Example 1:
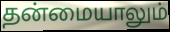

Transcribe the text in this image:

தன்மையாலும்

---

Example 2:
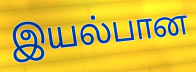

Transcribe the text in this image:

இயல்பான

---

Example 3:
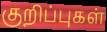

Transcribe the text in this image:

குறிப்புகள்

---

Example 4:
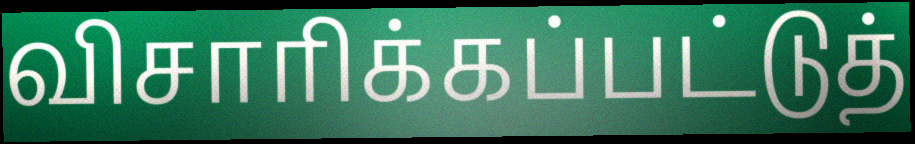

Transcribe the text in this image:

விசாரிக்கப்பட்டுத்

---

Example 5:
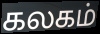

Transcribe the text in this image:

கலகம்